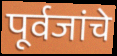
पूर्वजांचे